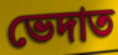
ভেদাত